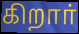
கிறார்